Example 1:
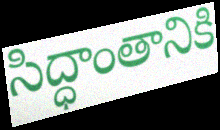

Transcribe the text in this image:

సిద్ధాంతానికి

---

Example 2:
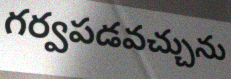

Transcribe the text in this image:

గర్వపడవచ్చును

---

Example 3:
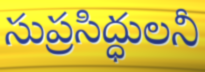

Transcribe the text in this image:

సుప్రసిద్ధులనీ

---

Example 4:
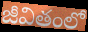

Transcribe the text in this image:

జీవితంలో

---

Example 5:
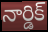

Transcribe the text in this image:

నార్డిక్